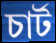
চাৰ্ট